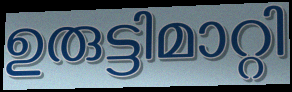
ഉരുട്ടിമാറ്റി